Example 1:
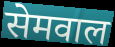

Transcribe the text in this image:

सेमवाल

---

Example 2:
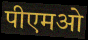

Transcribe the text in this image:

पीएमओ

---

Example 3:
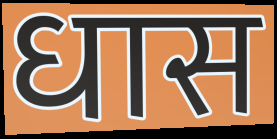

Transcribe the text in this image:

धास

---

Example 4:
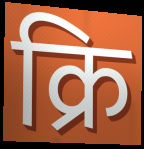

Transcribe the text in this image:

क्रि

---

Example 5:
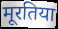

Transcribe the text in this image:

मूरतिया